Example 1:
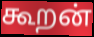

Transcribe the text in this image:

கூறன்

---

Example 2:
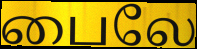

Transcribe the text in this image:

பைலே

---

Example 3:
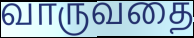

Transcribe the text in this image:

வாருவதை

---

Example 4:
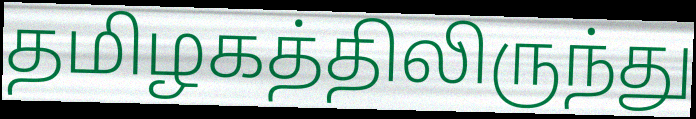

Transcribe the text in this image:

தமிழகத்திலிருந்து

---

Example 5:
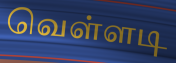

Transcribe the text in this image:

வெள்ளடி